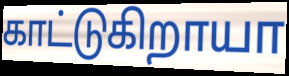
காட்டுகிறாயா